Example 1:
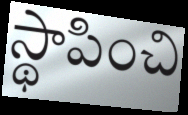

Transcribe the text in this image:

స్థాపించి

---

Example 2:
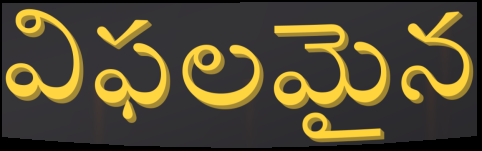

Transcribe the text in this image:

విఫలమైన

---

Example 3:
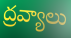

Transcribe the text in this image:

ద్రవ్యాలు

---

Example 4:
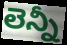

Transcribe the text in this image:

లెన్నీ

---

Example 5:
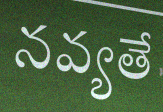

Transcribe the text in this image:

నవ్యతే